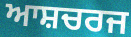
ਆਸ਼ਚਰਜ